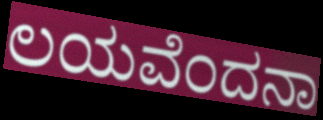
ಲಯವೆಂದನಾ